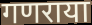
गणराया